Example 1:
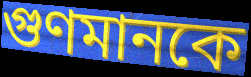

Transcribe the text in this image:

গুণমানকে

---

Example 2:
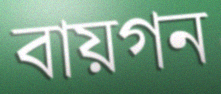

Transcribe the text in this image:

বায়গন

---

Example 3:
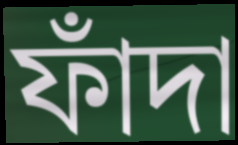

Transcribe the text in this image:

ফাঁদা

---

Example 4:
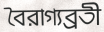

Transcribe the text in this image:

বৈরাগ্যব্রতী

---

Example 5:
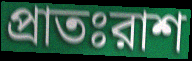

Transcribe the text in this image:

প্রাতঃরাশ